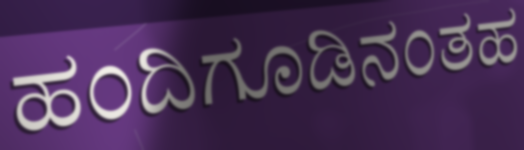
ಹಂದಿಗೂಡಿನಂತಹ